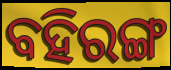
ବହିରଙ୍ଗ